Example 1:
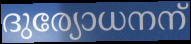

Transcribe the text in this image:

ദുര്യോധനന്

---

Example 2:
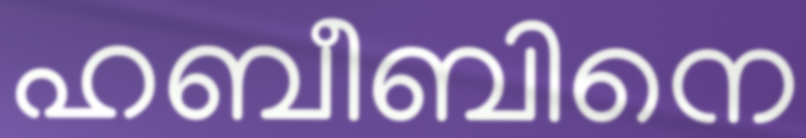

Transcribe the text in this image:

ഹബീബിനെ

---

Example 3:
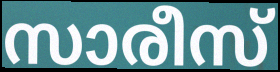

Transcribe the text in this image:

സാരീസ്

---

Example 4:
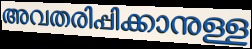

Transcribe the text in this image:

അവതരിപ്പിക്കാനുള്ള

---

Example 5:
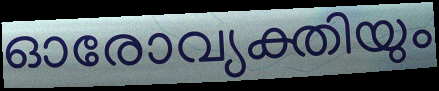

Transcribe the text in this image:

ഓരോവ്യക്തിയും